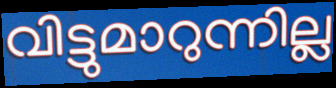
വിട്ടുമാറുന്നില്ല